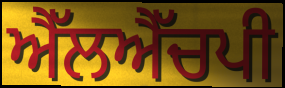
ਐੱਲਐੱਚਪੀ